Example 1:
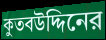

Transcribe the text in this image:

কুতবউদ্দিনের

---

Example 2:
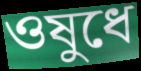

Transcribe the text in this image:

ওষুধে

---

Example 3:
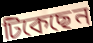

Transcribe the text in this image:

টিকেছেন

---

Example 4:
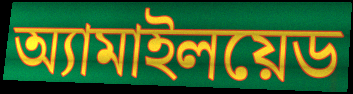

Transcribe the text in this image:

অ্যামাইলয়েড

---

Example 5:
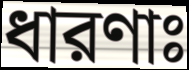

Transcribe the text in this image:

ধারণাঃ